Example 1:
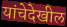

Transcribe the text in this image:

यांचेदेखील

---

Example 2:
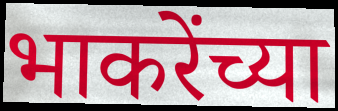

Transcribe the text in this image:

भाकरेंच्या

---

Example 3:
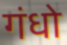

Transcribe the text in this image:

गंधो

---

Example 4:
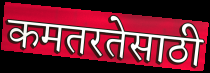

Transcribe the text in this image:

कमतरतेसाठी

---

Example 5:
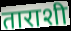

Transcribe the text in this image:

ताराशी